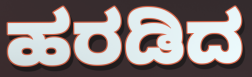
ಹರಡಿದ